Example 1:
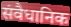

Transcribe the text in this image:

संवैधानिक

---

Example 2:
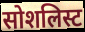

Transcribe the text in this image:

सोशलिस्ट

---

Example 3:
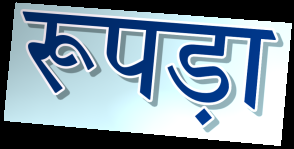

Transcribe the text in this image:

रूपड़ा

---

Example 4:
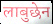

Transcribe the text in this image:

लाबुछेन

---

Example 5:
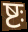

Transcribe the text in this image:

ष्टः